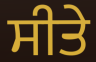
ਸੀਤੇ